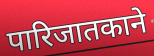
पारिजातकाने